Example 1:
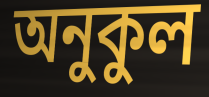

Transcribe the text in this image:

অনুকুল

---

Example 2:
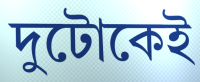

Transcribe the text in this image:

দুটোকেই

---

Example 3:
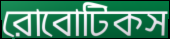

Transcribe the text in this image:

রোবোটিকস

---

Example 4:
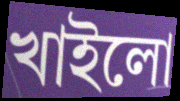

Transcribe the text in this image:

খাইলো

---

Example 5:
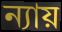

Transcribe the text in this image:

ন্যায়